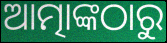
ଆତ୍ମାଙ୍କଠାରୁ